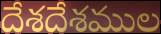
దేశదేశముల